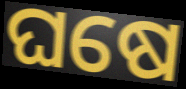
ଘଷେ